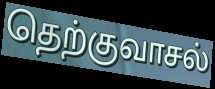
தெற்குவாசல்